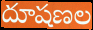
దూషణల